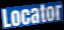
Locator